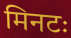
मिनटः